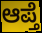
ಆಪ್ತೆ